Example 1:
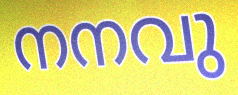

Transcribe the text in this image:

നനവു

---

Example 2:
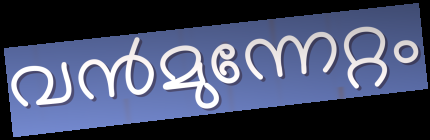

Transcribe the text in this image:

വൻമുന്നേറ്റം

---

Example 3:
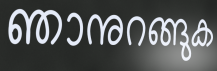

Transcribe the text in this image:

ഞാനുറങ്ങുക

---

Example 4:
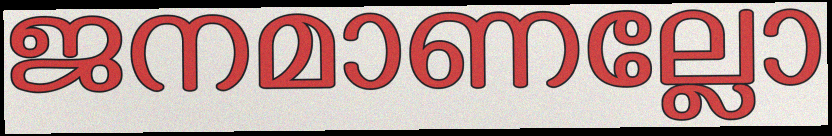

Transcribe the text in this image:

ജനമാണല്ലോ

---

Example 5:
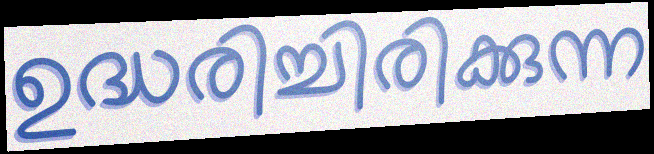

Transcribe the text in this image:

ഉദ്ധരിച്ചിരിക്കുന്ന